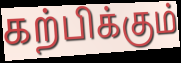
கற்பிக்கும்